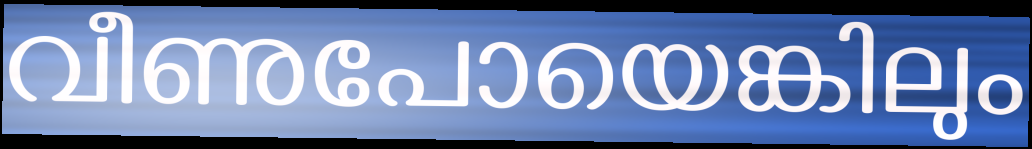
വീണുപോയെങ്കിലും